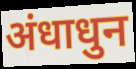
अंधाधुन